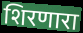
शिरणारा